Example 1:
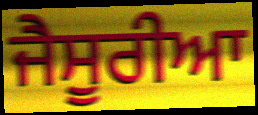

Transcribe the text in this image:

ਜੈਸੂਰੀਆ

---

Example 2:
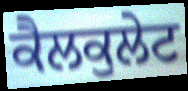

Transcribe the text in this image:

ਕੈਲਕੁਲੇਟ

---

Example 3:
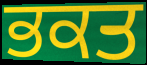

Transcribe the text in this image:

ਭਕਤ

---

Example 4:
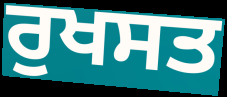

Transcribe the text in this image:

ਰੁਖਸਤ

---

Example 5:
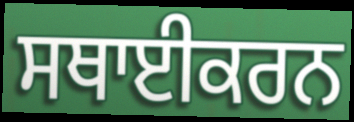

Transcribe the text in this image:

ਸਥਾਈਕਰਨ